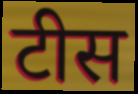
टीस